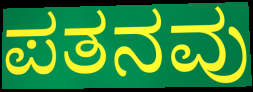
ಪತನವು